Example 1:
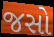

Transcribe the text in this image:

જસો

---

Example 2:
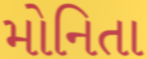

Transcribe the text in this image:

મોનિતા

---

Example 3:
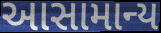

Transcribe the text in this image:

આસામાન્ય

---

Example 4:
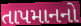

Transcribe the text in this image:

તાપમાનનો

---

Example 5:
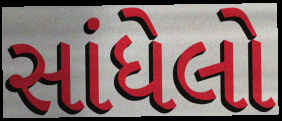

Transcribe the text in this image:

સાંધેલો